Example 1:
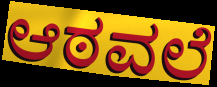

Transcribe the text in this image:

ಆಠವಲೆ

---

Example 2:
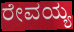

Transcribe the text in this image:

ರೇವಯ್ಯ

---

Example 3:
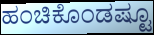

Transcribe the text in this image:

ಹಂಚಿಕೊಂಡಷ್ಟೂ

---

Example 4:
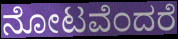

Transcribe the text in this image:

ನೋಟವೆಂದರೆ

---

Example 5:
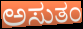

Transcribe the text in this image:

ಅಸುತಂ